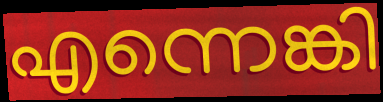
എന്നെങ്കി